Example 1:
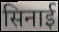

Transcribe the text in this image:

सिनाई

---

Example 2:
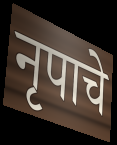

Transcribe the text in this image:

नृपाचे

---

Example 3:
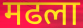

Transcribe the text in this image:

मढला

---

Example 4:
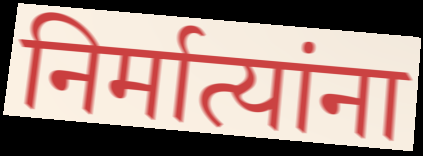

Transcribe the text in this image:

निर्मात्यांना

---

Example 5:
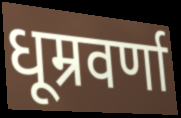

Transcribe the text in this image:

धूम्रवर्णा